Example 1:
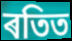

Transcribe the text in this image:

ৰতিত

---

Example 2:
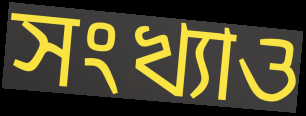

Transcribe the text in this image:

সংখ্যাও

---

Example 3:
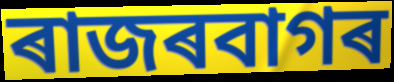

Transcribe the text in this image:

ৰাজৰবাগৰ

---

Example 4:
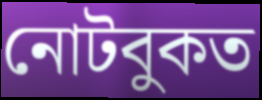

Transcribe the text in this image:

নোটবুকত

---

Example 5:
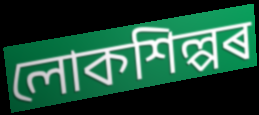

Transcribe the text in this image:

লোকশিল্পৰ